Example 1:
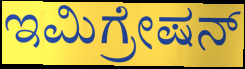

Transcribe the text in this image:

ಇಮಿಗ್ರೇಷನ್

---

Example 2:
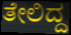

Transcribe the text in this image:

ತೇಲಿದ್ದ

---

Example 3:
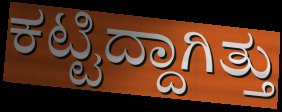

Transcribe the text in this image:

ಕಟ್ಟಿದ್ದಾಗಿತ್ತು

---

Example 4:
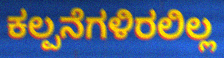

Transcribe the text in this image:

ಕಲ್ಪನೆಗಳಿರಲಿಲ್ಲ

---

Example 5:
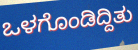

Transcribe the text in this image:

ಒಳಗೊಂಡಿದ್ದಿತು